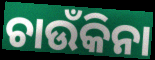
ଚାଉଁକିନା